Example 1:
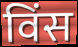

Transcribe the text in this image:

विंस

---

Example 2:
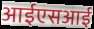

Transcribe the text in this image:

आईएसआई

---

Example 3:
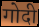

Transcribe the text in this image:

गोदी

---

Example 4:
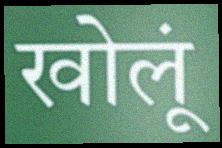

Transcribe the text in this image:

खोलूं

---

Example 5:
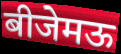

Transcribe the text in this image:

बीजेमऊ